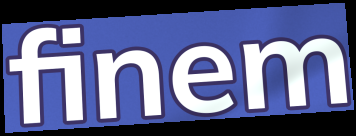
finem